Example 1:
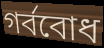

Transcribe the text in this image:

গর্ববোধ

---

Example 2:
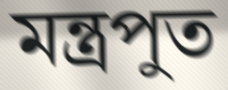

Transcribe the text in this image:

মন্ত্রপুত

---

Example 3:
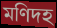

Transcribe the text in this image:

মণিদহ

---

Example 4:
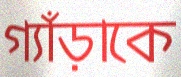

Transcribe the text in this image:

গ্যাঁড়াকে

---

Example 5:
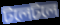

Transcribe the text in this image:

টলেটলে